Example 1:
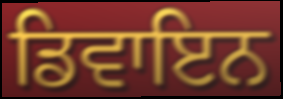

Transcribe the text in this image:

ਡਿਵਾਇਨ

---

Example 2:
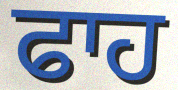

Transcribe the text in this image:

ਫਾਹ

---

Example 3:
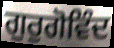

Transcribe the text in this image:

ਗੁਰੁਗੋਵਿੰਦ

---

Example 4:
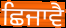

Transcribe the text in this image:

ਛਿਜਾਵੈ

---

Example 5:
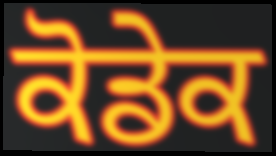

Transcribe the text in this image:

ਕੋਡੇਕ